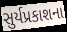
સુર્યપ્રકાશના